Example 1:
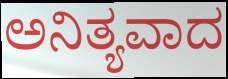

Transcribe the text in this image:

ಅನಿತ್ಯವಾದ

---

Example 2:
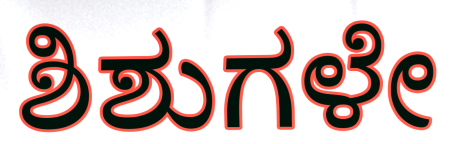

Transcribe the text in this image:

ಶಿಶುಗಳೇ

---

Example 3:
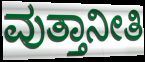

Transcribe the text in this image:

ವುತ್ತಾನೀತಿ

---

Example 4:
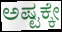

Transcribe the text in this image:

ಅಷ್ಟಕ್ಕೇ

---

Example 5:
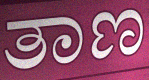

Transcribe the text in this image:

ತಾಣ